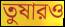
তুষারও